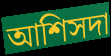
আশিসদা